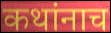
कथांनाच